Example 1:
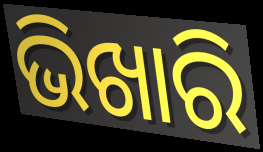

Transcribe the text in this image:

ଭିଖାରି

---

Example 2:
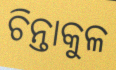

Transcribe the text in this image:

ଚିନ୍ତାକୁଳ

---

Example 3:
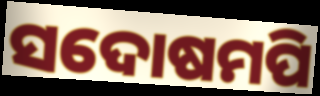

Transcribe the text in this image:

ସଦୋଷମପି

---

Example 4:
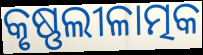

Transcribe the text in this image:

କୃଷ୍ଣଲୀଳାତ୍ମକ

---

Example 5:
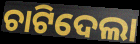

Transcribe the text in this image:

ଚାଟିଦେଲା